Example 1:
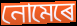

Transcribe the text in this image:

নোমেৰে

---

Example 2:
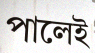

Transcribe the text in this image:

পালেই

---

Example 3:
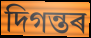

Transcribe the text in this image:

দিগন্তৰ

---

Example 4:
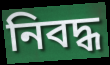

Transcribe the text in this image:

নিবদ্ধ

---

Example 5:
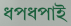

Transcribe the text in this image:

ধপধপাই